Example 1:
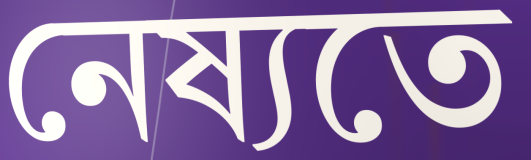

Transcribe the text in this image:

নেষ্যতে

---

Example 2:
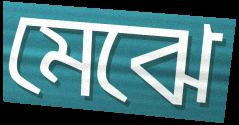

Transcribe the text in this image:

মেঝে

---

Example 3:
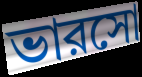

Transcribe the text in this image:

ভারসো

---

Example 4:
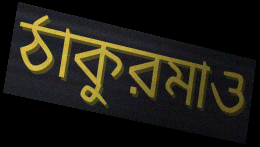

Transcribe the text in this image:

ঠাকুরমাও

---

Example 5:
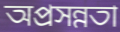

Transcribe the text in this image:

অপ্রসন্নতা